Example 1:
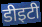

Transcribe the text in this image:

डीइटी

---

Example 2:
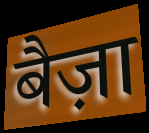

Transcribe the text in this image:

बैज़ा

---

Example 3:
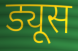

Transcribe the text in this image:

ड्यूस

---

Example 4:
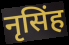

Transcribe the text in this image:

नृसिंह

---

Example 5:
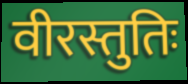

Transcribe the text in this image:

वीरस्तुतिः